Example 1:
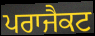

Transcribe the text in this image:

ਪਰਾਜੈਕਟ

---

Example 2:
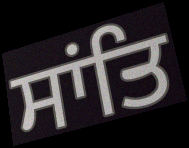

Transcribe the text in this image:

ਸਾਂਤਿ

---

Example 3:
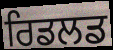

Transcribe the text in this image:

ਰਿਡਲਡ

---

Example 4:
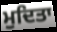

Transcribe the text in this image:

ਮੁਦਿਤਾ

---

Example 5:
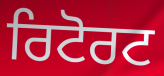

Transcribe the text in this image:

ਰਿਟੋਰਟ